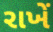
રાખેં